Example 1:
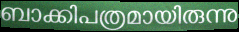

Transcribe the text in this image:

ബാക്കിപത്രമായിരുന്നു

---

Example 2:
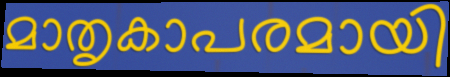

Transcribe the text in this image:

മാതൃകാപരമായി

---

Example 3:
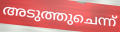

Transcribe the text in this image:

അടുത്തുചെന്ന്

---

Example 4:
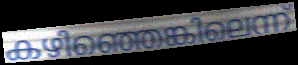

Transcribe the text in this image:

കഴിഞ്ഞെങ്കിലെന്ന്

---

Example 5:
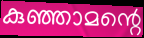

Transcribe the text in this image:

കുഞ്ഞാമന്റെ